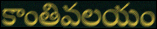
కాంతివలయం